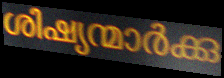
ശിഷ്യന്മാർക്കു